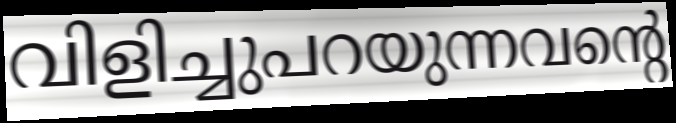
വിളിച്ചുപറയുന്നവന്റെ